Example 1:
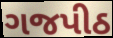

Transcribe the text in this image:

ગજપીઠ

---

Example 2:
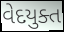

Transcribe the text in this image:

વેદયુક્ત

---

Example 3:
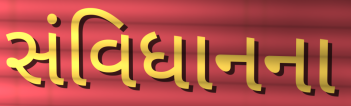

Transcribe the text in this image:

સંવિધાનના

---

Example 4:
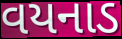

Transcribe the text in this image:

વયનાડ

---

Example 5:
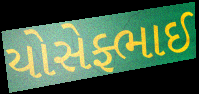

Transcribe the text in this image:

યોસેફ્ભાઈ